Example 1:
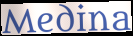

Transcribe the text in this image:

Medina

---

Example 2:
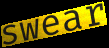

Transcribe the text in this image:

swear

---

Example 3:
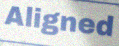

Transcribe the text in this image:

Aligned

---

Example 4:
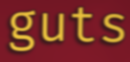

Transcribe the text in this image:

guts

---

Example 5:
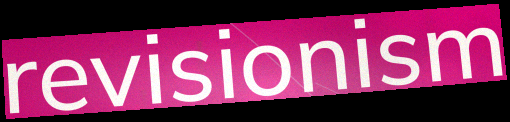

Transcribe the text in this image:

revisionism